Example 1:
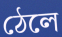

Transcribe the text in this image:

ঠেলে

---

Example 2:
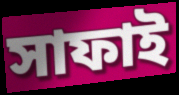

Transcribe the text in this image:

সাফাই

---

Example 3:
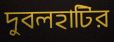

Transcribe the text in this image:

দুবলহাটির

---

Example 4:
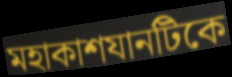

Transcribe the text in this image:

মহাকাশযানটিকে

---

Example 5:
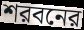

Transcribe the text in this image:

শরবনের